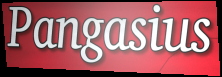
Pangasius